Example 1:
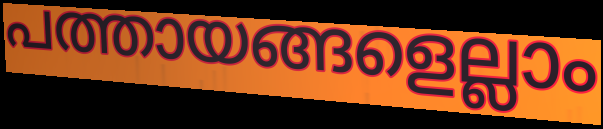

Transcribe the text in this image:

പത്തായങ്ങളെല്ലാം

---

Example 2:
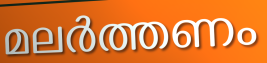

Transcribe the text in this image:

മലർത്തണം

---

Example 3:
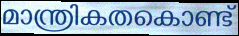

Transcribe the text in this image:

മാന്ത്രികതകൊണ്ട്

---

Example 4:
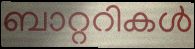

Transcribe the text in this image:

ബാറ്ററികൾ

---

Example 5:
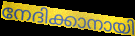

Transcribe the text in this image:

നേദിക്കാനായി